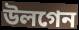
উলগেন